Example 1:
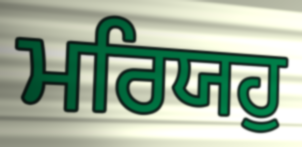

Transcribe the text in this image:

ਮਰਿਯਹੁ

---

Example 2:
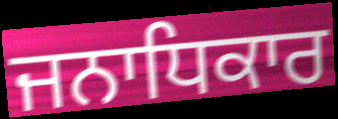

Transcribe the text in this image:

ਜਨਾਧਿਕਾਰ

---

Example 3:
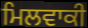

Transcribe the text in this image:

ਮਿਲਵਾਕੀ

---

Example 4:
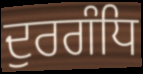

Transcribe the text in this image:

ਦੁਰਗੰਧਿ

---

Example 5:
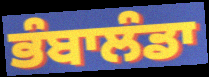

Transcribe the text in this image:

ਭੰਬਾਲੰਡਾ